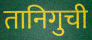
तानिगुची